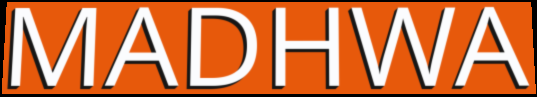
MADHWA